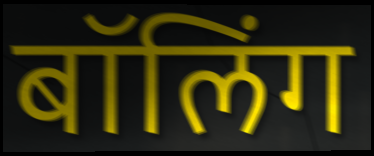
बॉलिंग